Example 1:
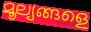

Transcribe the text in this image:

മൂല്യങ്ങളെ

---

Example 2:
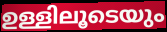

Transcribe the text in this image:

ഉള്ളിലൂടെയും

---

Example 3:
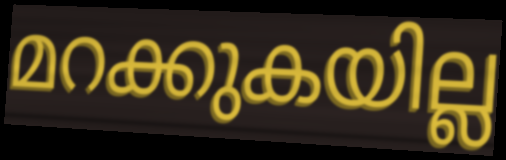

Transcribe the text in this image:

മറക്കുകയില്ല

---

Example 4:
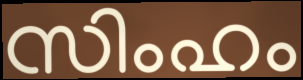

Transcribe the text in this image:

സിംഹം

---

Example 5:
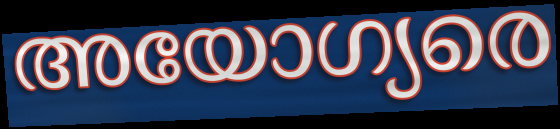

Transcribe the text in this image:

അയോഗ്യരെ